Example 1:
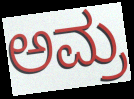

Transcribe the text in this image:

ಅಮ್ರ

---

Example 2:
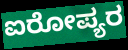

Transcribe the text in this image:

ಐರೋಪ್ಯರ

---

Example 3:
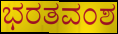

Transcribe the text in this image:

ಭರತವಂಶ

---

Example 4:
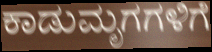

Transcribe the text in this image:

ಕಾಡುಮೃಗಗಳಿಗೆ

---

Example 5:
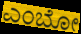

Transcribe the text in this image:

ಎಂಬೋ